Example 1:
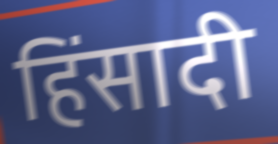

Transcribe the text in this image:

हिंसादी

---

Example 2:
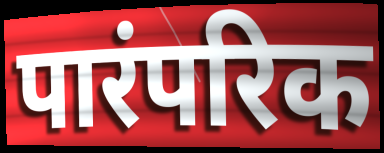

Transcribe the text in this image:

पारंपरिक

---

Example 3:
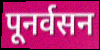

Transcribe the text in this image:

पूनर्वसन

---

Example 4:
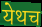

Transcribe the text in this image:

येथच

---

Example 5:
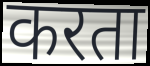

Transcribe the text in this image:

करता